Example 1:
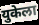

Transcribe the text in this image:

युकेला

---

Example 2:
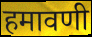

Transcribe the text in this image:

हमावणी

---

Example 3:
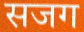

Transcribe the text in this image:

सजग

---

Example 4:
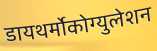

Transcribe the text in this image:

डायथर्मोकोग्युलेशन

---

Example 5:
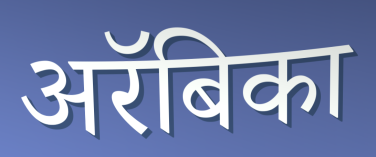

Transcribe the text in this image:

अरॅबिका